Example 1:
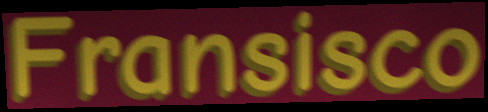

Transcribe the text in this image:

Fransisco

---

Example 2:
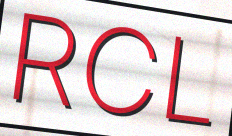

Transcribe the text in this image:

RCL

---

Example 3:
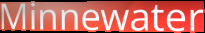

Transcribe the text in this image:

Minnewater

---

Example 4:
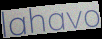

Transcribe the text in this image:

lahavo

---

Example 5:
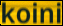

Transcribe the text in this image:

koini